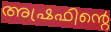
അഷ്രഫിന്റെ